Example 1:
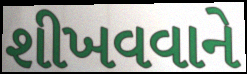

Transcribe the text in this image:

શીખવવાને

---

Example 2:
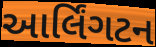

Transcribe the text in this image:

આર્લિંગટન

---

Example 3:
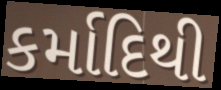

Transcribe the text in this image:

કર્માદિથી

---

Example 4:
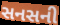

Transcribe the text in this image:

સનસની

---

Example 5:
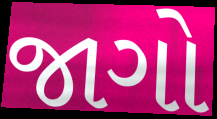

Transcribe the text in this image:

જાગો